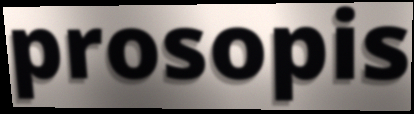
prosopis